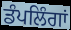
ਡੰਪਲਿੰਗਾਂ